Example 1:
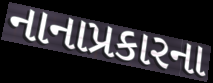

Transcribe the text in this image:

નાનાપ્રકારના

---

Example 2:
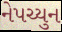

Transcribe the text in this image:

નેપચ્યુન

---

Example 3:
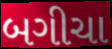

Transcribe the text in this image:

બગીચા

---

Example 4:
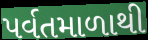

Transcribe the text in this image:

પર્વતમાળાથી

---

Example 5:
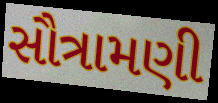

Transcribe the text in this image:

સૌત્રામણી